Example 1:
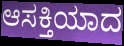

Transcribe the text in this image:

ಆಸಕ್ತಿಯಾದ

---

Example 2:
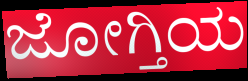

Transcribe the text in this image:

ಜೋಗ್ತಿಯ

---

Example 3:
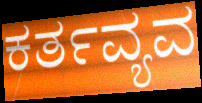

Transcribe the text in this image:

ಕರ್ತವ್ಯವ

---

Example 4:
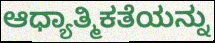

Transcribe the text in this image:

ಆಧ್ಯಾತ್ಮಿಕತೆಯನ್ನು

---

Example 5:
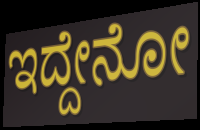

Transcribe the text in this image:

ಇದ್ದೇನೋ